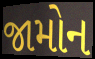
જામોન